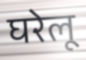
घरेलू